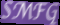
SMFG